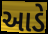
આડે